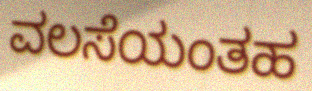
ವಲಸೆಯಂತಹ